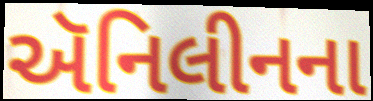
ઍનિલીનના